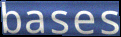
bases